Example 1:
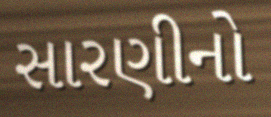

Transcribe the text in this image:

સારણીનો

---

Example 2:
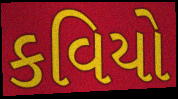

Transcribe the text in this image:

કવિયો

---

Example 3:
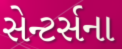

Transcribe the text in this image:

સેન્ટર્સના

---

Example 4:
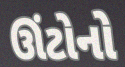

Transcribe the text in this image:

ઊંટોનો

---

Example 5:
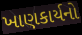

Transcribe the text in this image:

ખાણકાર્યનો